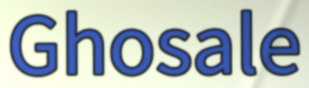
Ghosale